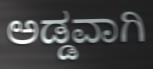
ಅಡ್ಡವಾಗಿ